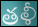
తళీ